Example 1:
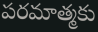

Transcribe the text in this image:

పరమాత్మకు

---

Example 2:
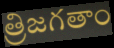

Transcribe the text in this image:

త్రిజగతాం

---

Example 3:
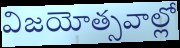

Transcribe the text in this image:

విజయోత్సవాల్లో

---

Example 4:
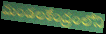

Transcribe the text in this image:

మండలకేంద్రంలోని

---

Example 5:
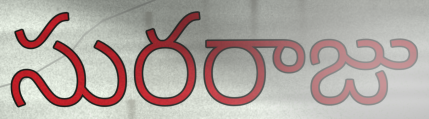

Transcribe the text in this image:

సురరాజు